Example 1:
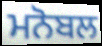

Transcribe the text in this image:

ਮਨੋਬਲ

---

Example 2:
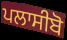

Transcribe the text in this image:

ਪਲਾਸੀਬੋ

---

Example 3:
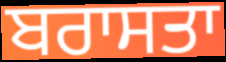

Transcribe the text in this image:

ਬਰਾਸਤਾ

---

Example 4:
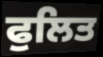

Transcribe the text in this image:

ਫੁਲਿਤ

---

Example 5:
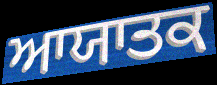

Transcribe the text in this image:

ਆਯਾਤਕ